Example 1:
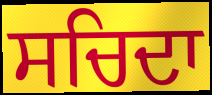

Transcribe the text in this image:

ਸਚਿਦਾ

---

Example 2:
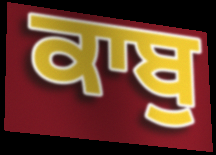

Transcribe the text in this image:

ਕਾਬੁ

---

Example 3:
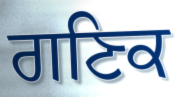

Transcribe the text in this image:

ਗਣਿਕ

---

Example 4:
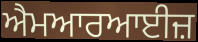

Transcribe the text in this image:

ਐਮਆਰਆਈਜ਼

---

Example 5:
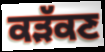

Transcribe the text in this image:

ਕੜੱਕਣ